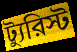
ট্যুরিস্ট